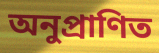
অনুপ্ৰাণিত